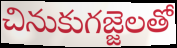
చినుకుగజ్జెలతో